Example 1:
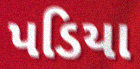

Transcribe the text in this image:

પડિયા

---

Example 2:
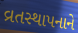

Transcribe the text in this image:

વ્રતસ્થાપનાને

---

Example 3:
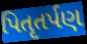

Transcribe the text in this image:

પિતૃતર્પણ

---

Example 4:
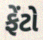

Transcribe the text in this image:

ફેંટો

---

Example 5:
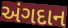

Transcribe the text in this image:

અંગદાન